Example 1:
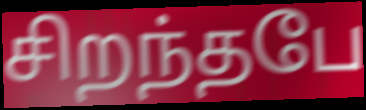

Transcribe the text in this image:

சிறந்தபே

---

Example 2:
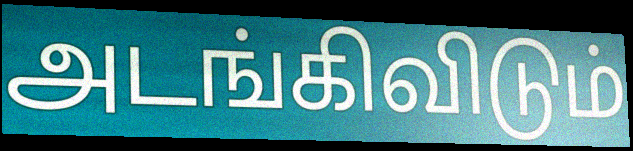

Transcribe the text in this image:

அடங்கிவிடும்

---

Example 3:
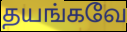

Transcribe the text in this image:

தயங்கவே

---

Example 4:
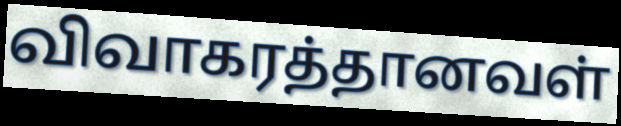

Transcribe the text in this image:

விவாகரத்தானவள்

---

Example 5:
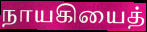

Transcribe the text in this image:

நாயகியைத்